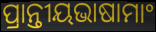
ପ୍ରାନ୍ତୀୟଭାଷାମାଂ